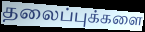
தலைப்புக்களை